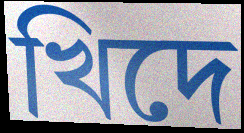
খিদে